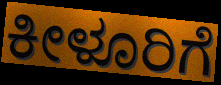
ಕೀಳೂರಿಗೆ